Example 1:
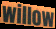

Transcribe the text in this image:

willow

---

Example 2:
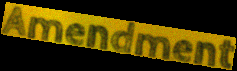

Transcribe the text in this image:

Amendment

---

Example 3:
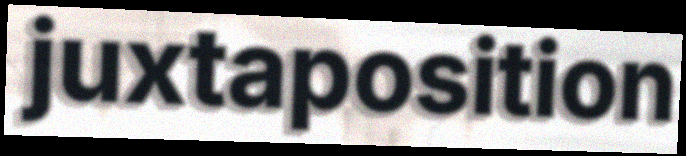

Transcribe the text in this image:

juxtaposition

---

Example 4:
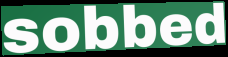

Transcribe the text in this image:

sobbed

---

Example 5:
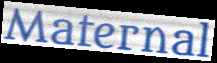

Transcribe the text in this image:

Maternal